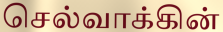
செல்வாக்கின்